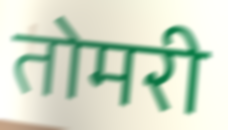
तोमरी